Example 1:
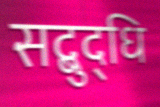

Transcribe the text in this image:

सद्बुद्धि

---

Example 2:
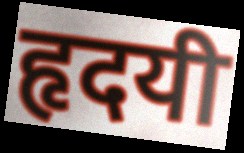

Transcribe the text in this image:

हृदयी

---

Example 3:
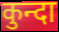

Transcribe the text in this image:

कुन्दा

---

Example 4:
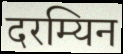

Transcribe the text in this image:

दरम्यिन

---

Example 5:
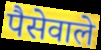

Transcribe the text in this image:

पैसेवाले